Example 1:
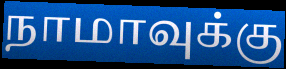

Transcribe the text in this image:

நாமாவுக்கு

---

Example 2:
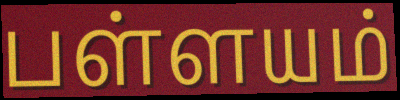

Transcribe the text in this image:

பள்ளயம்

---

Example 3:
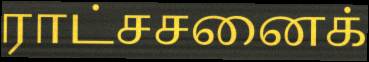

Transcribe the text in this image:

ராட்சசனைக்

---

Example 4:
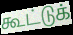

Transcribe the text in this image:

கூட்டுக்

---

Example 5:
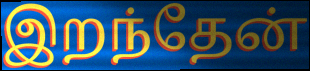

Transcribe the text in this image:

இறந்தேன்